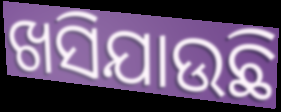
ଖସିଯାଉଛି